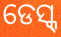
ଡେସ୍କ୍